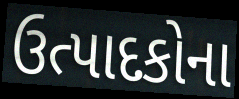
ઉત્પાદકોના